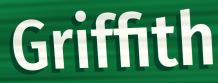
Griffith